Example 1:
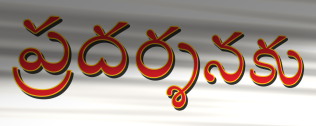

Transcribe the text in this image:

ప్రదర్శనకు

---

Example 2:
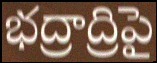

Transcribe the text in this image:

భద్రాద్రిపై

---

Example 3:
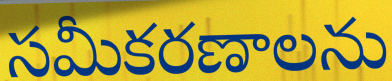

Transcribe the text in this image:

సమీకరణాలను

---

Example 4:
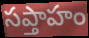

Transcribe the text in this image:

సప్తాహం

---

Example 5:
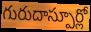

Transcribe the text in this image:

గురుదాస్పూర్లో